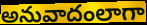
అనువాదంలాగా